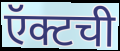
ऍक्टची